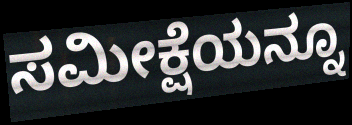
ಸಮೀಕ್ಷೆಯನ್ನೂ